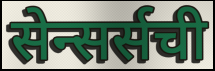
सेन्सर्सची